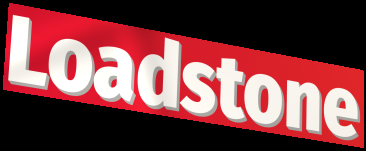
Loadstone